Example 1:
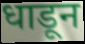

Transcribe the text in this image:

धाडून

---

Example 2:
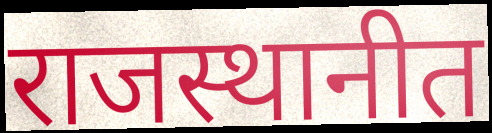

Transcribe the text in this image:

राजस्थानीत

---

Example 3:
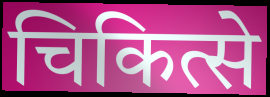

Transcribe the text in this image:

चिकित्से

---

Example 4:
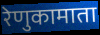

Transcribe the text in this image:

रेणुकामाता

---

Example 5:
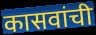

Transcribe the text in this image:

कासवांची